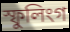
স্ফুলিংগ